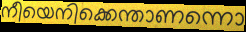
നീയെനിക്കെന്താണന്നൊ